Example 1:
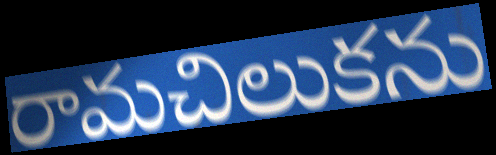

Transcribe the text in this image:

రామచిలుకను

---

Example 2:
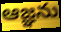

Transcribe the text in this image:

ఆజ్ఞను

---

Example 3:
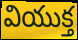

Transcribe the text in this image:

వియుక్త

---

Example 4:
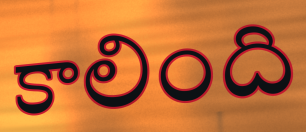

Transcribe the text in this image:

కాలింది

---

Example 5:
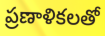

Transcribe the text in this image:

ప్రణాళికలతో